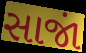
સાજાં